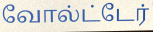
வோல்ட்டேர்